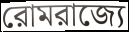
রোমরাজ্যে